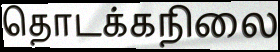
தொடக்கநிலை